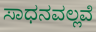
ಸಾಧನವಲ್ಲವೆ